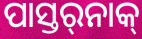
ପାସ୍ତର୍‍ନାକ୍